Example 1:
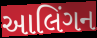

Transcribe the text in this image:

આલિંગન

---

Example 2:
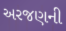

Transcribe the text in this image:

અરજણની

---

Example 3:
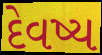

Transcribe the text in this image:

દેવષ્ય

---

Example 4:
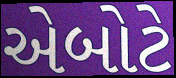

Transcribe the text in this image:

એબોટે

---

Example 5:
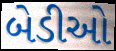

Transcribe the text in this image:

બેડીઓ